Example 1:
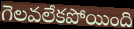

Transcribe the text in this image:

గెలవలేకపోయింది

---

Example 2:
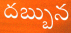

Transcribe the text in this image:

దబ్బున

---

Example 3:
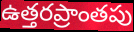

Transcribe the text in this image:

ఉత్తరప్రాంతపు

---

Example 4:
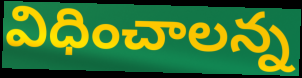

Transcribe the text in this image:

విధించాలన్న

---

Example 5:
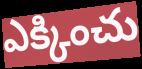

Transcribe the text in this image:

ఎక్కించు